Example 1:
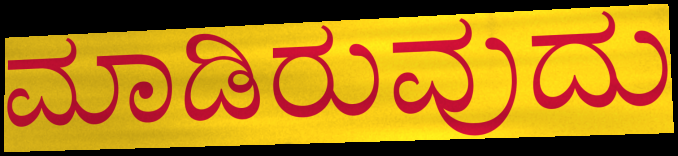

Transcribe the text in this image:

ಮಾಡಿರುವುದು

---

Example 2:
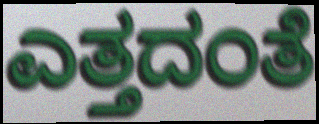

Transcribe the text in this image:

ಎತ್ತದಂತೆ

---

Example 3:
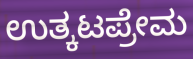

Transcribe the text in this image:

ಉತ್ಕಟಪ್ರೇಮ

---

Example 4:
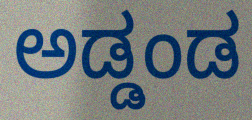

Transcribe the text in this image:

ಅಡ್ಡಂಡ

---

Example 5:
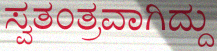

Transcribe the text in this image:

ಸ್ವತಂತ್ರವಾಗಿದ್ದು